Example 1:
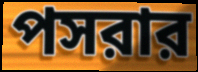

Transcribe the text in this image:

পসরার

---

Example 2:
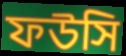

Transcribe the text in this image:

ফউসি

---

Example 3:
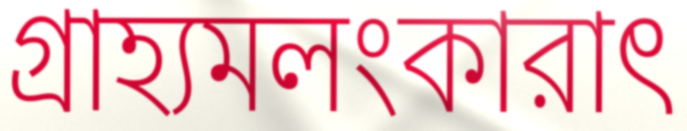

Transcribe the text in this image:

গ্রাহ্যমলংকারাৎ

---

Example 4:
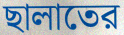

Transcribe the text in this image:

ছালাতের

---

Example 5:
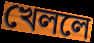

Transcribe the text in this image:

খেললে